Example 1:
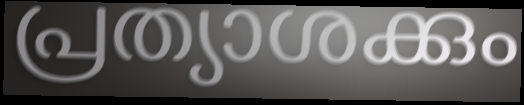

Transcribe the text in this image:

പ്രത്യാശക്കും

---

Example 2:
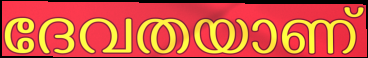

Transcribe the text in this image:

ദേവതയാണ്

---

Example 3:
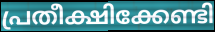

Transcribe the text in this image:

പ്രതീക്ഷിക്കേണ്ടി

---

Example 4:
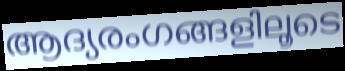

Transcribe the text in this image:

ആദ്യരംഗങ്ങളിലൂടെ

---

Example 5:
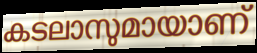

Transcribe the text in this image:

കടലാസുമായാണ്